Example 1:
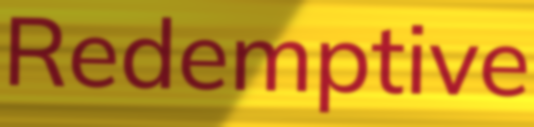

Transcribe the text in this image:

Redemptive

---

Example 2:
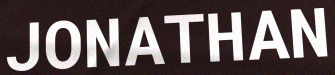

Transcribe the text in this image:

JONATHAN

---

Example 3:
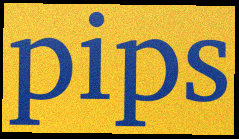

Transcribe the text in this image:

pips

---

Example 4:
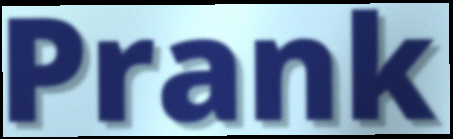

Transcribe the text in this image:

Prank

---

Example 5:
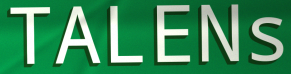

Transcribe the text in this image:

TALENs